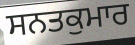
ਸਨਤਕੁਮਾਰ